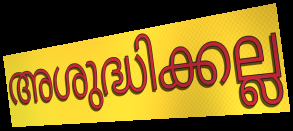
അശുദ്ധിക്കല്ല